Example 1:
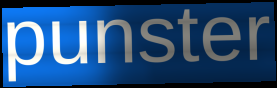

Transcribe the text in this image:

punster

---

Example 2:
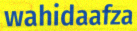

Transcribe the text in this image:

wahidaafza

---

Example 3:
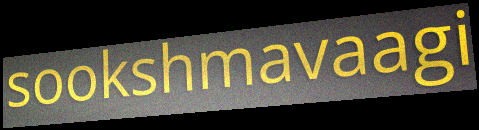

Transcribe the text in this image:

sookshmavaagi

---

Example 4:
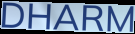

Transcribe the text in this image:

DHARM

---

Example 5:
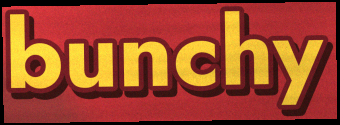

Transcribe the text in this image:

bunchy